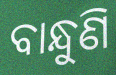
ବାନ୍ଧୁଣି